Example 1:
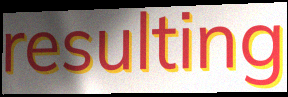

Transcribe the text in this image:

resulting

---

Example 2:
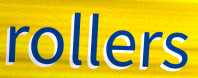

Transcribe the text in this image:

rollers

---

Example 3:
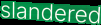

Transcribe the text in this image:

slandered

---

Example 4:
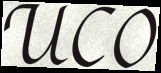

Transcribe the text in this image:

UCO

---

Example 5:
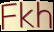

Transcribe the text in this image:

Fkh